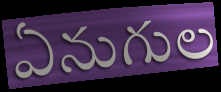
ఏనుగుల